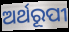
ଅର୍ଥରୂପୀ